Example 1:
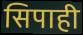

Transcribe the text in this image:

सिपाही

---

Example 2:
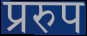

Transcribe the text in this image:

प्ररुप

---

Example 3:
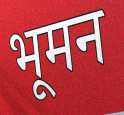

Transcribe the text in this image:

भूमन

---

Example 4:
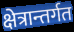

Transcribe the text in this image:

क्षेत्रान्‍तर्गत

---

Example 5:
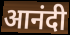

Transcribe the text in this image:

आनंदी